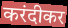
करंदीकर